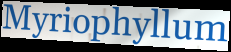
Myriophyllum